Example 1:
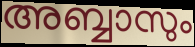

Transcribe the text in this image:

അബ്ബാസും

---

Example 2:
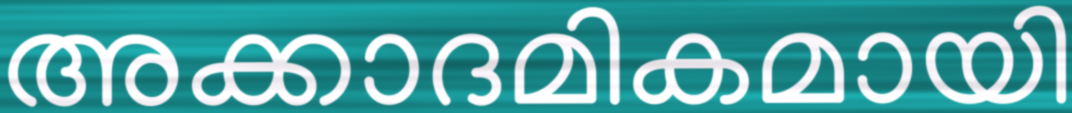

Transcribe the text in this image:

അക്കാദമികമായി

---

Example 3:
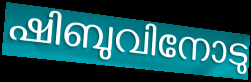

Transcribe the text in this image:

ഷിബുവിനോടു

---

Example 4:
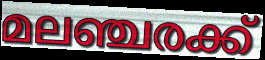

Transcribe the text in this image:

മലഞ്ചരക്ക്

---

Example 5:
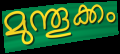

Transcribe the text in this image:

മുന്തൂക്കം